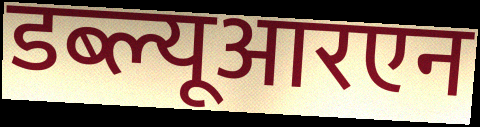
डब्ल्यूआरएन